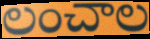
లంచాల